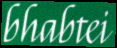
bhabtei